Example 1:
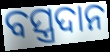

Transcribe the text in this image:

ବସ୍ତ୍ରଦାନ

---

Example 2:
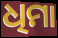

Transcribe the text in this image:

ଧିମା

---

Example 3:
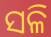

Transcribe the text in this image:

ସଳି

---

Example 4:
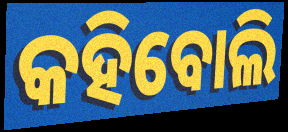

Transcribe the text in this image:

କହିବୋଲି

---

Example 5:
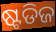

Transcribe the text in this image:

ଷ୍ଟଡିଜ